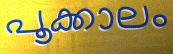
പൂക്കാലം